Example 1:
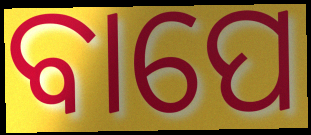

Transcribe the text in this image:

ବାପେ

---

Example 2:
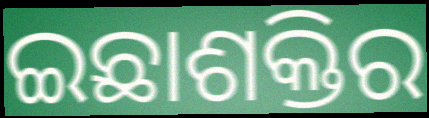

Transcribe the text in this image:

ଇଛାଶକ୍ତିର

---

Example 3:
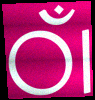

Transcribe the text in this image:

ଠାଁ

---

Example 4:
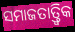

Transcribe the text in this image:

ସମାଜତାତ୍ତ୍ୱିକ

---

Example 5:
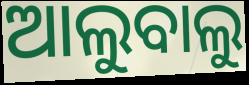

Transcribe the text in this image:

ଆଲୁବାଲୁ